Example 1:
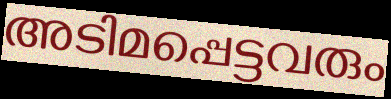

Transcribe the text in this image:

അടിമപ്പെട്ടവരും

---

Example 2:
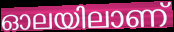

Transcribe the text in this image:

ഓലയിലാണ്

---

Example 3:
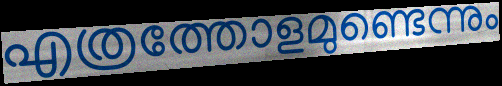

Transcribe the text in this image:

എത്രത്തോളമുണ്ടെന്നും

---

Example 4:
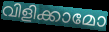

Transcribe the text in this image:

വിളിക്കാമോ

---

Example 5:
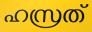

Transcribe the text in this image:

ഹസ്രത്